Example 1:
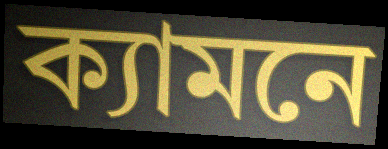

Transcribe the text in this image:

ক্যামনে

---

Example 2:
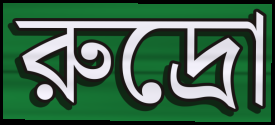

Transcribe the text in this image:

রুদ্রো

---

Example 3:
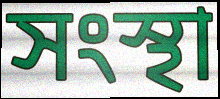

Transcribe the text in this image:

সংস্থা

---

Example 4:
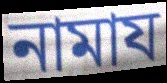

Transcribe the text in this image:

নামায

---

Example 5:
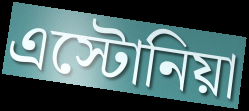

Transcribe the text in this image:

এস্টোনিয়া